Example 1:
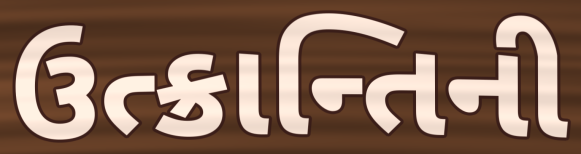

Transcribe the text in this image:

ઉત્ક્રાન્તિની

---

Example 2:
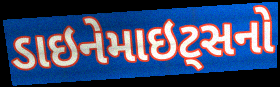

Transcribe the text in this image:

ડાઇનેમાઇટ્સનો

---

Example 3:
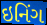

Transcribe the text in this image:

ઇનિંગ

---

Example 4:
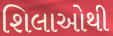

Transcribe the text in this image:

શિલાઓથી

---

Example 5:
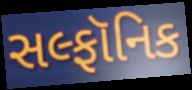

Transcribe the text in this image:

સલ્ફૉનિક